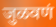
जुळवणं